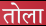
तोला